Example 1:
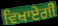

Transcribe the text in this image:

ਵਿਖਾਏਗੀ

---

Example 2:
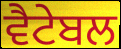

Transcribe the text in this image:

ਵੈਟੇਬਲ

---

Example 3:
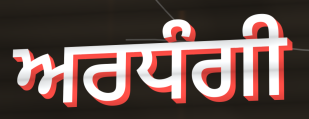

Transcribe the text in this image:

ਅਰਧੰਗੀ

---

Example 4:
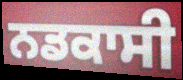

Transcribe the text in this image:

ਨਡਕਾਸੀ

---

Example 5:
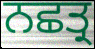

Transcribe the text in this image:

ਨਛਤ੍ਰ